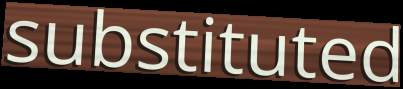
substituted